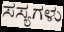
ಸಸ್ಯಗಳು